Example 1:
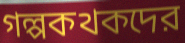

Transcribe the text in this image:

গল্পকথকদের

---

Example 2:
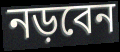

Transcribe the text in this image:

নড়বেন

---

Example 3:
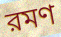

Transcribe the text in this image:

রমণ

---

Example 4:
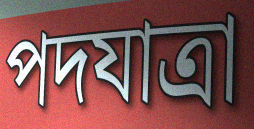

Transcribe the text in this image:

পদযাত্রা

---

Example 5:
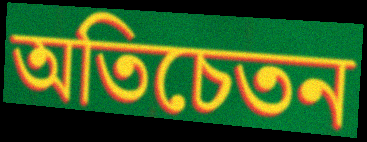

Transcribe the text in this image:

অতিচেতন